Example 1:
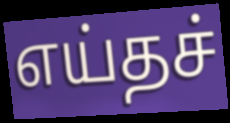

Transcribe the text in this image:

எய்தச்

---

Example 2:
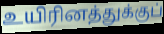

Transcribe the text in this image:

உயிரினத்துக்குப்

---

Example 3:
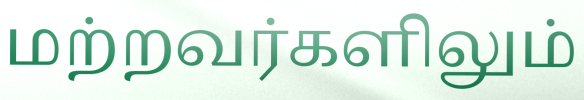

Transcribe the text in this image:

மற்றவர்களிலும்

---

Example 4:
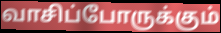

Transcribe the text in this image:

வாசிப்போருக்கும்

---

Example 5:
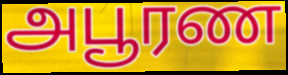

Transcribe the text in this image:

அபூரண